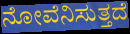
ನೋವೆನಿಸುತ್ತದೆ